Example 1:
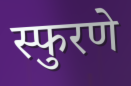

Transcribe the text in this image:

स्फुरणे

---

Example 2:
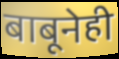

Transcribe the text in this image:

बाबूनेही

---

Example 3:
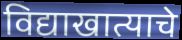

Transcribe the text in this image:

विद्याखात्याचे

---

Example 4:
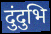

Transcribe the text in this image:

दुंदुभि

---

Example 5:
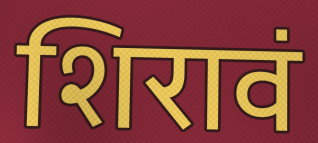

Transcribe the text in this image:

शिरावं